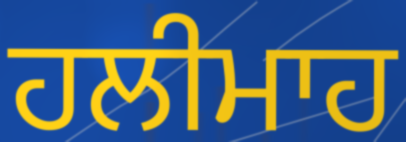
ਹਲੀਮਾਹ